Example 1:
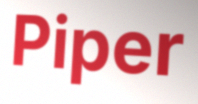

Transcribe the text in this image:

Piper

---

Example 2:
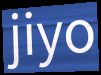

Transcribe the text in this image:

jiyo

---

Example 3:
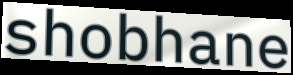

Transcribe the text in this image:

shobhane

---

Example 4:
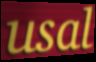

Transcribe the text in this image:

usal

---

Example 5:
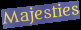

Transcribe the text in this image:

Majesties